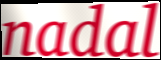
nadal